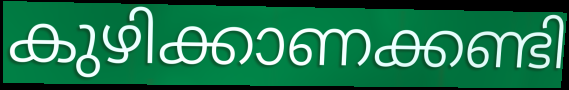
കുഴിക്കാണക്കണ്ടി